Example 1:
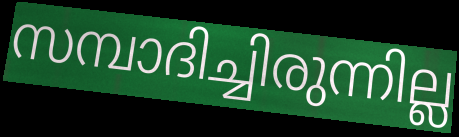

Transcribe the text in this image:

സമ്പാദിച്ചിരുന്നില്ല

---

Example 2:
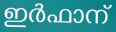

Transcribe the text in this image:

ഇർഫാന്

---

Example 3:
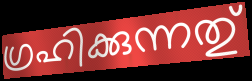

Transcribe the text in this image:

ഗ്രഹിക്കുന്നതു്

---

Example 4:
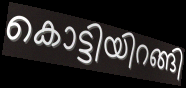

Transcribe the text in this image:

കൊട്ടിയിറങ്ങി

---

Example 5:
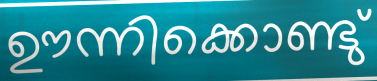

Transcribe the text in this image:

ഊന്നിക്കൊണ്ടു്